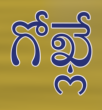
గోఖ్లే